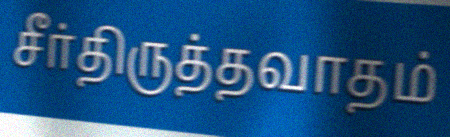
சீர்திருத்தவாதம்